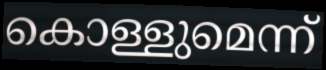
കൊള്ളുമെന്ന്